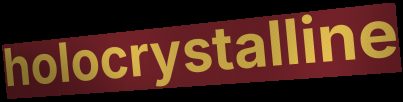
holocrystalline